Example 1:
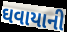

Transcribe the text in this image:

ઘવાયાની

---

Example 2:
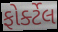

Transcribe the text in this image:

ફોર્ક્ટેલ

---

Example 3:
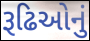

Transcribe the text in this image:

રૂઢિઓનું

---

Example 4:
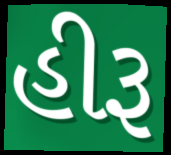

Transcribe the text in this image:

હીરૂ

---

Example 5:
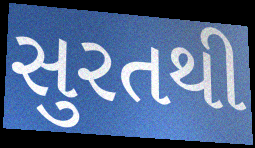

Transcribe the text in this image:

સુરતથી